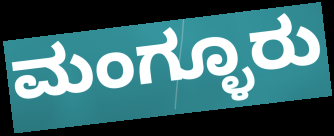
ಮಂಗ್ಳೂರು